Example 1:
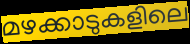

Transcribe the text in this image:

മഴക്കാടുകളിലെ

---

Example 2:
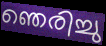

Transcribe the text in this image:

ഞെരിച്ചു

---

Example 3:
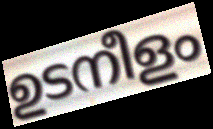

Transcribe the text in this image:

ഉടനീളം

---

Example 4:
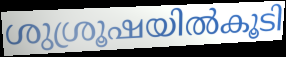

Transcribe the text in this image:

ശുശ്രൂഷയിൽകൂടി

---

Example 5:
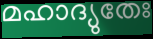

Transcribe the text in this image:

മഹാദ്യുതേഃ